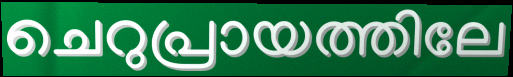
ചെറുപ്രായത്തിലേ